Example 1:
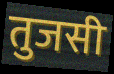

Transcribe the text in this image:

तुजसी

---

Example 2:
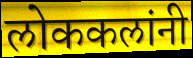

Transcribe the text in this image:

लोककलांनी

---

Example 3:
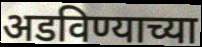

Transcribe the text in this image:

अडविण्याच्या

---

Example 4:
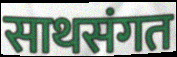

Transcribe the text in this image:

साथसंगत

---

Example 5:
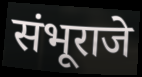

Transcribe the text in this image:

संभूराजे